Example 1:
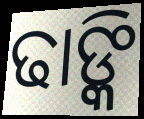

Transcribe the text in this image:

ଢାଙ୍କି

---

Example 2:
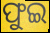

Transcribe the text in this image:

ଫୁଇ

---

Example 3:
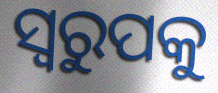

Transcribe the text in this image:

ସ୍ଵରୁପକୁ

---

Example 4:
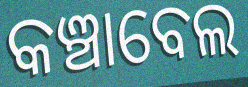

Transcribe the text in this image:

କଞ୍ଚାବେଲ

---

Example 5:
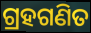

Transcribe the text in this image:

ଗ୍ରହଗଣିତ